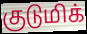
குடுமிக்